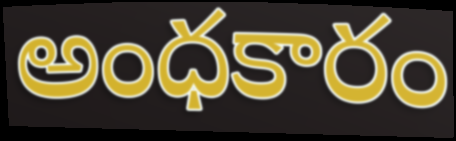
అంధకారం